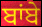
ਬਾਂਬੇ